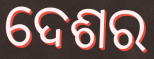
ଦେଶର